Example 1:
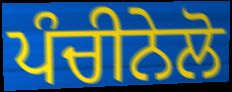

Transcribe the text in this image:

ਪੰਚੀਨੇਲੋ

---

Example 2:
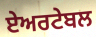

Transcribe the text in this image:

ਏਅਰਟੇਬਲ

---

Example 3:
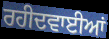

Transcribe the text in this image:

ਰਹੀਦਵਾਈਆਂ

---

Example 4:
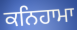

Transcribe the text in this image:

ਕਨਿਹਾਮਾ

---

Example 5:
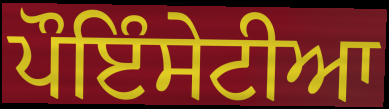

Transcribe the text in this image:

ਪੌਇੰਸੇਟੀਆ